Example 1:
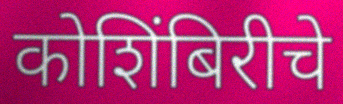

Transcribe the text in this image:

कोशिंबिरीचे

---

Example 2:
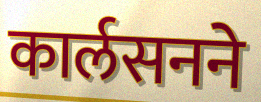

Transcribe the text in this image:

कार्लसनने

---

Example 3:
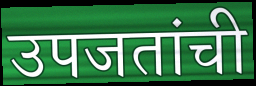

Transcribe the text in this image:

उपजतांची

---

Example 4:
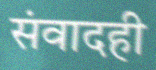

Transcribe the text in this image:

संवादही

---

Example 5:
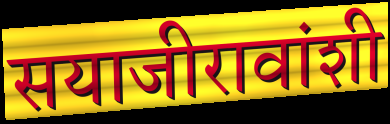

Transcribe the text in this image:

सयाजीरावांशी